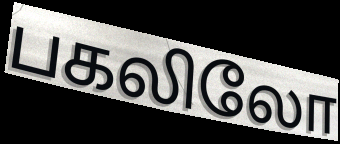
பகலிலோ